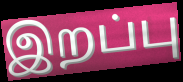
இறப்பு